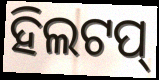
ହିଲଟପ୍